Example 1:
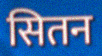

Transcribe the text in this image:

सितन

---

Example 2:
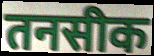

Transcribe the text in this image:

तनसीक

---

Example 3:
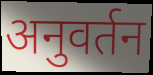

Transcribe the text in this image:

अनुवर्तन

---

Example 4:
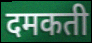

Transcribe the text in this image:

दमकती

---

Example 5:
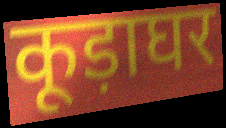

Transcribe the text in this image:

कूड़ाघर